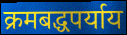
क्रमबद्धपर्याय